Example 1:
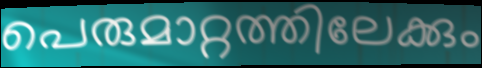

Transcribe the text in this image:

പെരുമാറ്റത്തിലേക്കും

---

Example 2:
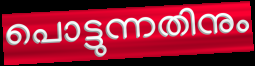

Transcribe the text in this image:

പൊട്ടുന്നതിനും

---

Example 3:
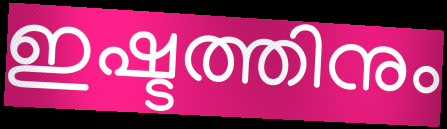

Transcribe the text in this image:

ഇഷ്ടത്തിനും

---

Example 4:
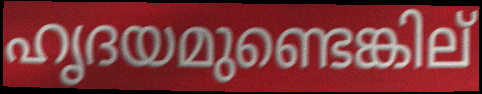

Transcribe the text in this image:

ഹൃദയമുണ്ടെങ്കില്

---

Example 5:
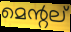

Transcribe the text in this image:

മെന്റല്